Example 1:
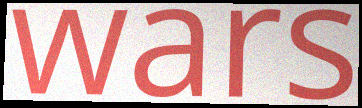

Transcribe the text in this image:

wars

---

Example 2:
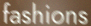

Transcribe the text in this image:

fashions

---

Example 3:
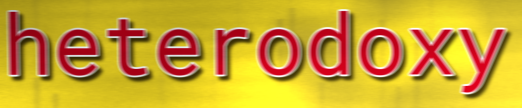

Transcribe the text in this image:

heterodoxy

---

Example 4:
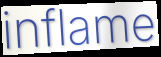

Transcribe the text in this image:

inflame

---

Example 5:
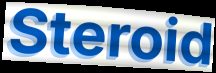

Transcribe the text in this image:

Steroid